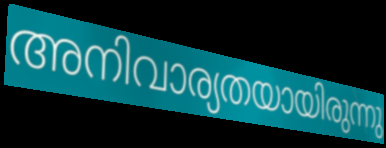
അനിവാര്യതയായിരുന്നു